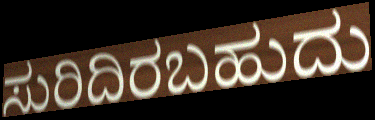
ಸುರಿದಿರಬಹುದು